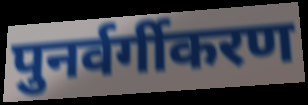
पुनर्वर्गीकरण